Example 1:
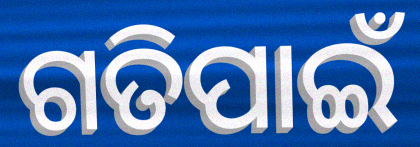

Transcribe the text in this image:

ଗତିପାଇଁ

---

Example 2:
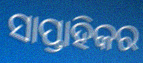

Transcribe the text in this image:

ସାପ୍ତାହିକର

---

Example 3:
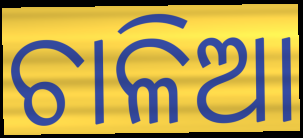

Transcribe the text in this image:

ଚାଳିଆ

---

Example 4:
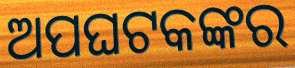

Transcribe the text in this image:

ଅପଘଟକଙ୍କର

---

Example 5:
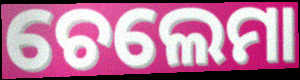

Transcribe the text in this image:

ଚେଲେମା